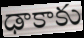
ఢాకాకు